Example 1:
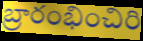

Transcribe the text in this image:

బ్రారంభించిరి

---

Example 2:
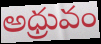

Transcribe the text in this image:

అధ్రువం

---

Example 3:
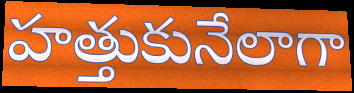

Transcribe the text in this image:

హత్తుకునేలాగా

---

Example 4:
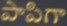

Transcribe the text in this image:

పాపిగా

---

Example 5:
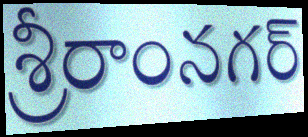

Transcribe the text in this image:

శ్రీరాంనగర్